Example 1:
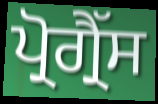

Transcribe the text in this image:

ਪ੍ਰੋਗ੍ਰੈੱਸ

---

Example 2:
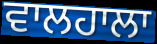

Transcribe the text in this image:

ਵਾਲਹਾਲਾ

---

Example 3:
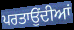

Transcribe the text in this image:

ਪਰਤਾਉਂਦੀਆਂ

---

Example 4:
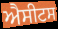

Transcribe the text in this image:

ਐਸੀਟਸ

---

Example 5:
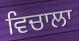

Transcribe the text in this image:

ਵਿਚਾਲਾ